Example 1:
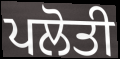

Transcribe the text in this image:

ਪਲੋਤੀ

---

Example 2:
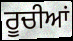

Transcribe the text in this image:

ਰੂਚੀਆਂ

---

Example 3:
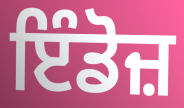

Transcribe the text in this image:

ਇੰਡੋਜ਼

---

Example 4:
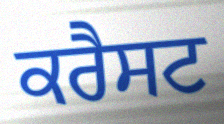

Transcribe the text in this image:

ਕਰੈਸਟ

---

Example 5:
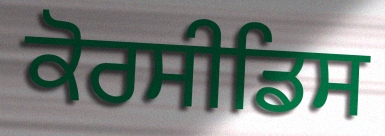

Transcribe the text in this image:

ਕੋਰਸੀਡਿਸ